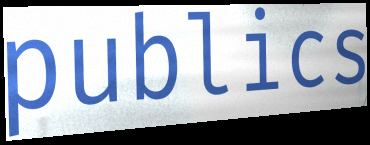
publics